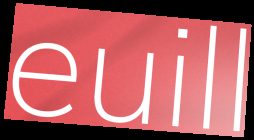
euill